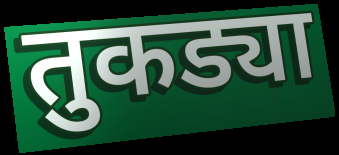
तुकड्या